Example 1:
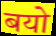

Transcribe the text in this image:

बयो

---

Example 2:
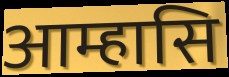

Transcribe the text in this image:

आम्हासि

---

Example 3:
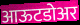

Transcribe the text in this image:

आऊटडोअर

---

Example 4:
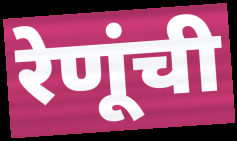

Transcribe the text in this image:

रेणूंची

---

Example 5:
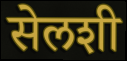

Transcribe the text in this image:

सेलशी